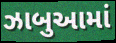
ઝાબુઆમાં